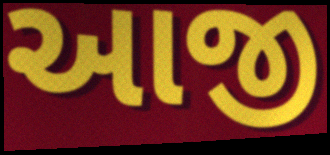
આજી